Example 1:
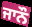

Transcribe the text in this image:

ਜਾਨੌ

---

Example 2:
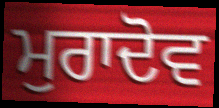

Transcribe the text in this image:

ਮੁਰਾਦੋਵ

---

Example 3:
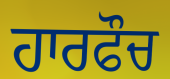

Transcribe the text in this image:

ਹਾਰਫੌਚ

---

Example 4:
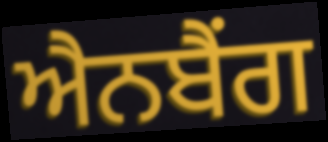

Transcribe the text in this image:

ਐਨਬੈਂਗ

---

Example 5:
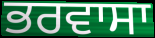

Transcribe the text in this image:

ਭਰਵਾਸਾ